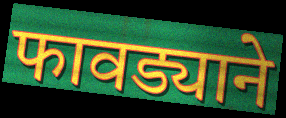
फावड्याने